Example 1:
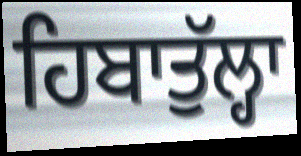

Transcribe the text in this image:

ਹਿਬਾਤੁੱਲ੍ਹਾ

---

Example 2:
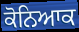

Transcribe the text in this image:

ਕੋਨਿਆਕ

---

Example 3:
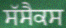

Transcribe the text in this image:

ਸੱਸੈਕਸ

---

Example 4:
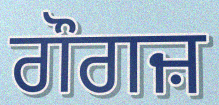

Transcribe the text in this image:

ਗੌਗਜ਼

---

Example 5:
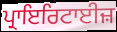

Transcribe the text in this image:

ਪ੍ਰਾਇਰਿਟਾਈਜ਼